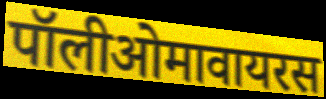
पॉलीओमावायरस